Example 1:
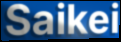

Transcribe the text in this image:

Saikei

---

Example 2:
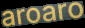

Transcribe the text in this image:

aroaro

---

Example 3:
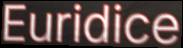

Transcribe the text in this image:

Euridice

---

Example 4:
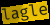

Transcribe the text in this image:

lagle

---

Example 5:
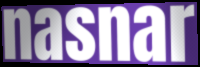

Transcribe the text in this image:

nasnar